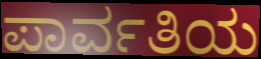
ಪಾರ್ವತಿಯ